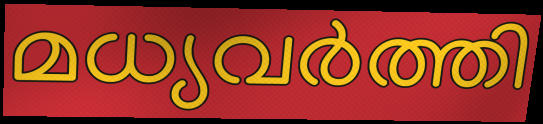
മധ്യവർത്തി